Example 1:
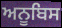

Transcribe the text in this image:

ਅਨੂਬਿਸ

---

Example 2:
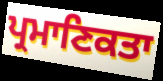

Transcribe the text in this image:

ਪ੍ਰਮਾਣਿਕਤਾ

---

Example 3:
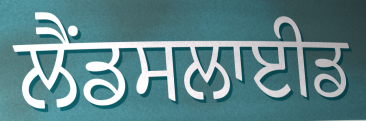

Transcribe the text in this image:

ਲੈਂਡਸਲਾਈਡ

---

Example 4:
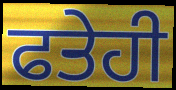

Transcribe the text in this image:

ਫਤੇਹੀ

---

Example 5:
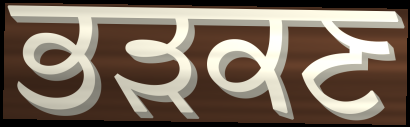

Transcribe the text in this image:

ਭੜਕਣ